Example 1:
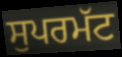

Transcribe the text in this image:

ਸੁਪਰਮੱਟ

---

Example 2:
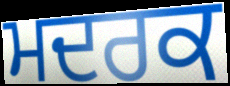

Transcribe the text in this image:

ਮਦਰਕ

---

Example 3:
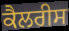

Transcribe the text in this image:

ਕੈਲਰੀਸ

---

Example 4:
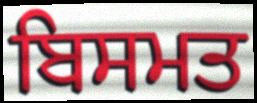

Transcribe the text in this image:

ਬਿਸਮਤ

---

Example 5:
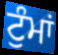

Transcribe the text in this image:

ਟੁੰਮਾਂ